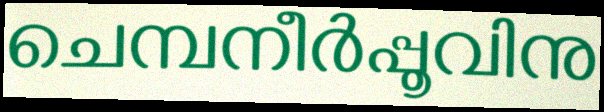
ചെമ്പനീർപ്പൂവിനു